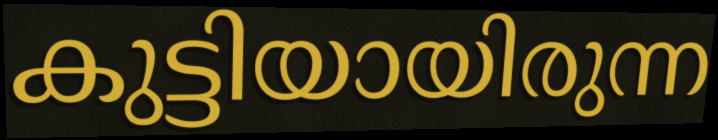
കുട്ടിയായിരുന്ന